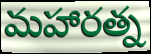
మహారత్న